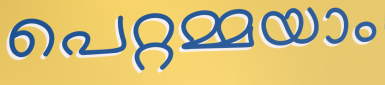
പെറ്റമ്മയാം